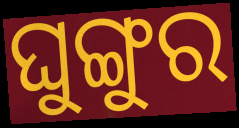
ଘୁଙ୍ଗୁର